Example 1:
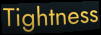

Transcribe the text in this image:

Tightness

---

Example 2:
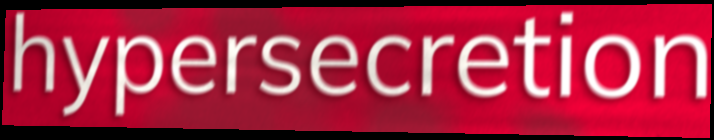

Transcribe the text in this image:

hypersecretion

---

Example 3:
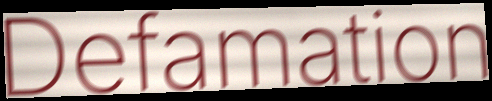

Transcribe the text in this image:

Defamation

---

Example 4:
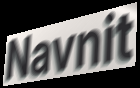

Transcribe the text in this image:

Navnit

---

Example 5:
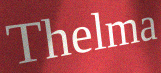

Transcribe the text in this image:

Thelma